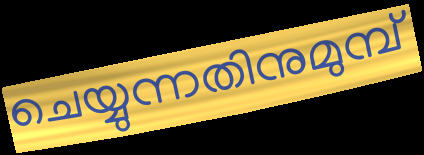
ചെയ്യുന്നതിനുമുമ്പ്